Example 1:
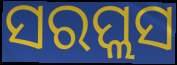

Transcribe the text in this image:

ସରପ୍ଲସ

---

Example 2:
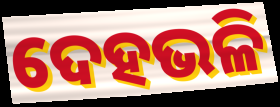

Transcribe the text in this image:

ଦେହଭଳି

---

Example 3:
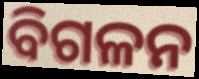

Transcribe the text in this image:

ବିଗଳନ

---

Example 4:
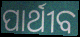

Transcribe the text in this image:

ପାର୍ଥୀବ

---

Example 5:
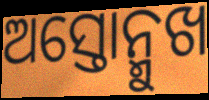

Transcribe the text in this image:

ଅସ୍ତୋନ୍ମୁଖ